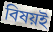
বিষয়ই